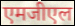
एमजीएल